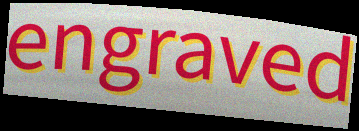
engraved